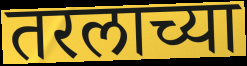
तरलाच्या